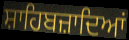
ਸ਼ਾਹਿਬਜ਼ਾਦਿਆਂ